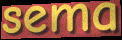
sema